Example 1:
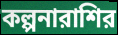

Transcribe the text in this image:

কল্পনারাশির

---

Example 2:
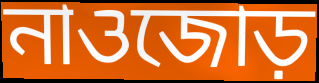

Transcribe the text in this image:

নাওজোড়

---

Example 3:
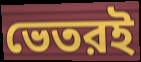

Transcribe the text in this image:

ভেতরই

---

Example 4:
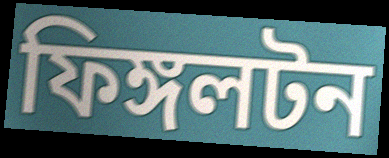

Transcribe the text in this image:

ফিঙ্গলটন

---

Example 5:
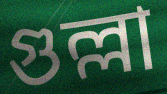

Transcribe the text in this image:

গুল্লা